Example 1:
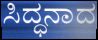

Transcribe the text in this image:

ಸಿದ್ಧನಾದ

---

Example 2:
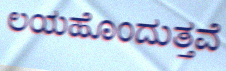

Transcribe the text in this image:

ಲಯಹೊಂದುತ್ತವೆ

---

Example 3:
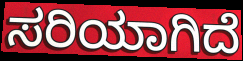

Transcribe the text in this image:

ಸರಿಯಾಗಿದೆ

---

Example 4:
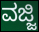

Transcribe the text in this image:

ವಜ್ಜಿ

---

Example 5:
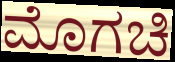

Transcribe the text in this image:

ಮೊಗಚಿ